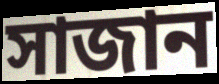
সাজান